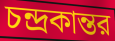
চন্দ্রকান্তর